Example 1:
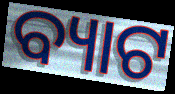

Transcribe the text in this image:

ବ୍ୟାଟ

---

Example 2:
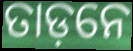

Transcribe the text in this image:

ତାଡ଼ନେ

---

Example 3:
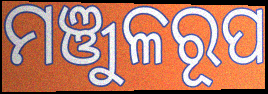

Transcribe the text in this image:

ମଞ୍ଜୁଳରୂପ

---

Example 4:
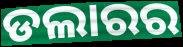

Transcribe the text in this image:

ଡଲାରର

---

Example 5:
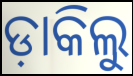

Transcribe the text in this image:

ଡ଼ାକିଲୁ